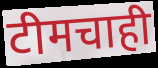
टीमचाही